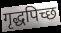
गृद्धपिच्छ